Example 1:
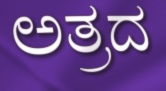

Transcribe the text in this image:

ಅತ್ರದ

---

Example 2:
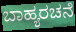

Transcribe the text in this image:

ಬಾಹ್ಯರಚನೆ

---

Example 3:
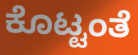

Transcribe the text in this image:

ಕೊಟ್ಟಂತೆ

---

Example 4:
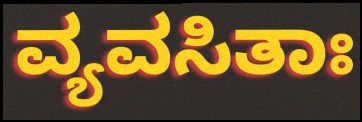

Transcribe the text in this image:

ವ್ಯವಸಿತಾಃ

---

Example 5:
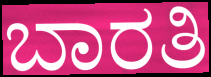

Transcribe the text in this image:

ಬಾರತಿ